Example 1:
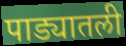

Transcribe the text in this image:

पाड्यातली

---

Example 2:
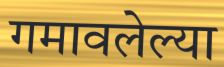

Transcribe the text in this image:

गमावलेल्या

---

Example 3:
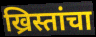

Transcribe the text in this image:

ख्रिस्तांचा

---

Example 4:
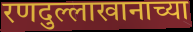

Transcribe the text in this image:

रणदुल्लाखानाच्या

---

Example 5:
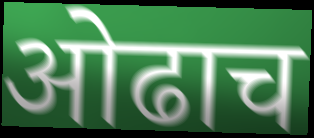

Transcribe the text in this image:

ओढाच